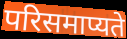
परिसमाप्यते